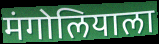
मंगोलियाला